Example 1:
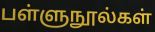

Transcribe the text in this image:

பள்ளுநூல்கள்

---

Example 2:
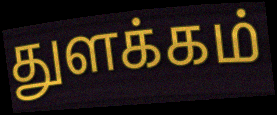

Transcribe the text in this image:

துளக்கம்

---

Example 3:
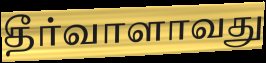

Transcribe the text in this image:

தீர்வாளாவது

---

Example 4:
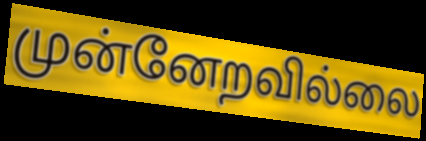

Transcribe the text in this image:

முன்னேறவில்லை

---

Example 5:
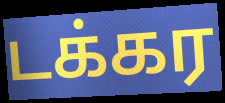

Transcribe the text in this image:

டக்கர